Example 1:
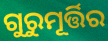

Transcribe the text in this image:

ଗୁରୁମୂର୍ତ୍ତିର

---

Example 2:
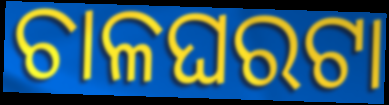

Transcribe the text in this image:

ଚାଳଘରଟା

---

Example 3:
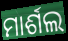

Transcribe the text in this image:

ମାର୍ଶଲ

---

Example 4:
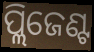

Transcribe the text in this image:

ପ୍ଲିଜେଣ୍ଟ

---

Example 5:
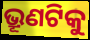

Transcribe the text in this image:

ଭ୍ରୂଣଟିକୁ